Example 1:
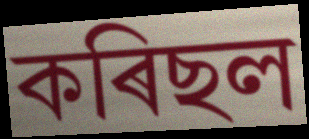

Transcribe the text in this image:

কৰিছল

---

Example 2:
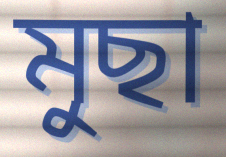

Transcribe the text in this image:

মুছা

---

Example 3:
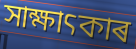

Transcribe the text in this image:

সাক্ষাৎকাৰ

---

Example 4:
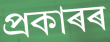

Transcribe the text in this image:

প্ৰকাৰৰ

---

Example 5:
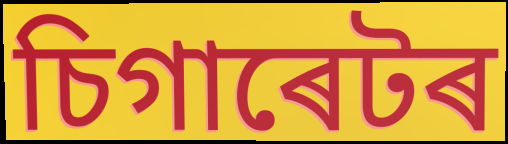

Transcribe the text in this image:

চিগাৰেটৰ